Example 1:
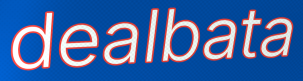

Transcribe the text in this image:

dealbata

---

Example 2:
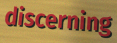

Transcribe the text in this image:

discerning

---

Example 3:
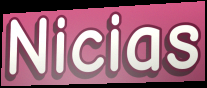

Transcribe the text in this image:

Nicias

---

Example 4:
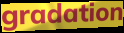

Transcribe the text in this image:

gradation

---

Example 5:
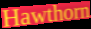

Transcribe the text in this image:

Hawthorn